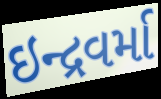
ઇન્દ્રવર્મા